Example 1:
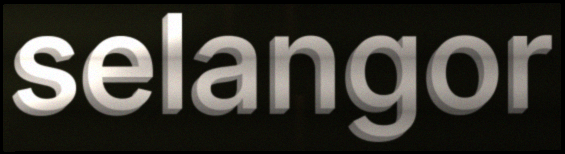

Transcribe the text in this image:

selangor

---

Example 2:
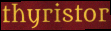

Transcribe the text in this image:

thyristor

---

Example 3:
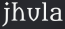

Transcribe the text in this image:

jhula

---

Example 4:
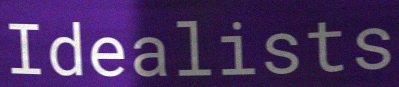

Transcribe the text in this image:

Idealists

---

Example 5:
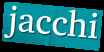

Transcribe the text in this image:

jacchi